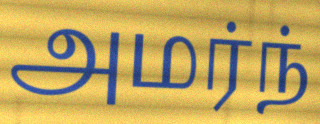
அமர்ந்